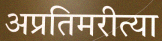
अप्रतिमरीत्या